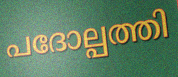
പദോല്പത്തി